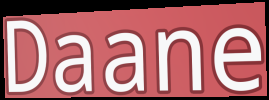
Daane